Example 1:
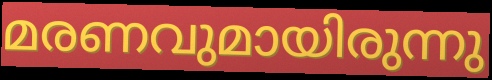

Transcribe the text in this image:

മരണവുമായിരുന്നു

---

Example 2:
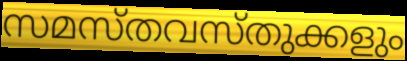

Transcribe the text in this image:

സമസ്തവസ്തുക്കളും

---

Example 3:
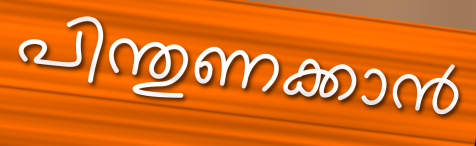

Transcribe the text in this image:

പിന്തുണക്കാൻ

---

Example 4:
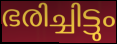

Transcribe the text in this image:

ഭരിച്ചിട്ടും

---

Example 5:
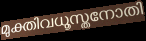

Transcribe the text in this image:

മുക്തിവധൂസ്തനോതി